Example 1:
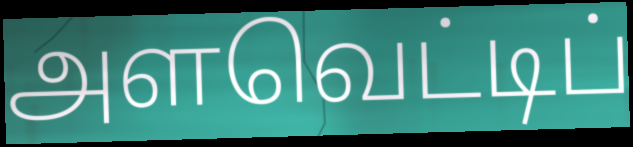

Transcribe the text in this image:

அளவெட்டிப்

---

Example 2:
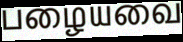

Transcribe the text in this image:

பழையவை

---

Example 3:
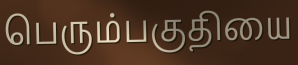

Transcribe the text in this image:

பெரும்பகுதியை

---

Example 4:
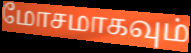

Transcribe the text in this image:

மோசமாகவும்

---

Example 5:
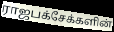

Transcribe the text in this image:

ராஜபக்சேக்களின்